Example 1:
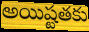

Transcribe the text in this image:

అయిష్టతకు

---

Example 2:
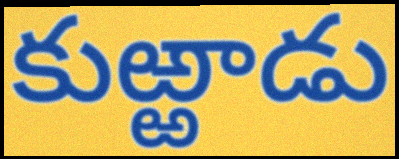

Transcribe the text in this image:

కుఱ్ఱాడు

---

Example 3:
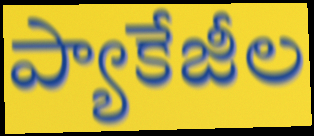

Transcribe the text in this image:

ప్యాకేజీల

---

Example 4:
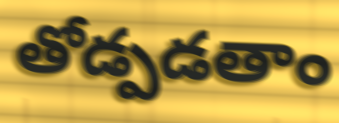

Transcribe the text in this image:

తోడ్పడతాం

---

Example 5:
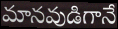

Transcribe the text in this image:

మానవుడిగానే